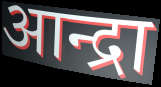
आन्द्रा